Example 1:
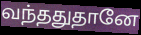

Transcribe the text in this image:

வந்ததுதானே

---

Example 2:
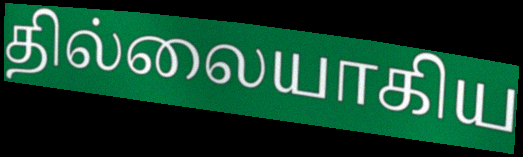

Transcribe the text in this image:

தில்லையாகிய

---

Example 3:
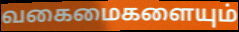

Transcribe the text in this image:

வகைமைகளையும்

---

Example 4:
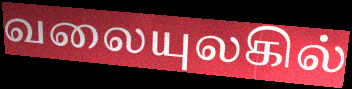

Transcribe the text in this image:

வலையுலகில்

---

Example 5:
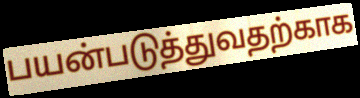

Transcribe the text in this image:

பயன்படுத்துவதற்காக